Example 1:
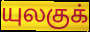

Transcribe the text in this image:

யுலகுக்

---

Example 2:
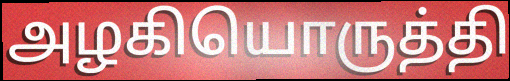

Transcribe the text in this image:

அழகியொருத்தி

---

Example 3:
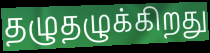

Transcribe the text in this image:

தழுதழுக்கிறது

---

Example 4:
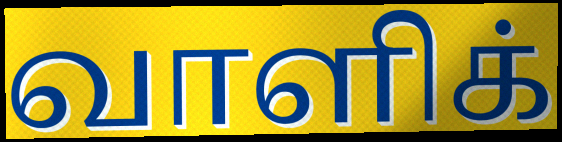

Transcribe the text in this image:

வாளிக்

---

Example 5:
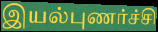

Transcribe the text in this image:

இயல்புணர்ச்சி